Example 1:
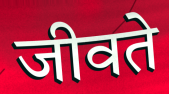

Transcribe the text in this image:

जीवते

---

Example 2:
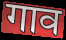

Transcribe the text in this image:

गाव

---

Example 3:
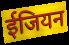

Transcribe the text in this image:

ईजियन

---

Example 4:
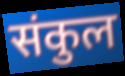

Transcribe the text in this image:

संकुल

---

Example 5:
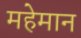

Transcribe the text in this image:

महेमान